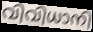
വിവിധാനി